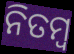
ନିତମ୍ୱ